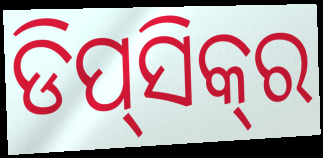
ଡିପ୍‌ସିକ୍‌ର